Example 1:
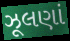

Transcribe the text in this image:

ઝૂલણાં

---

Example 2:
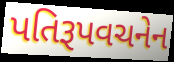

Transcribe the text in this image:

પતિરૂપવચનેન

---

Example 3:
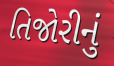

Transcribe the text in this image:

તિજોરીનું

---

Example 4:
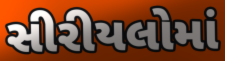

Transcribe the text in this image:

સીરીયલોમાં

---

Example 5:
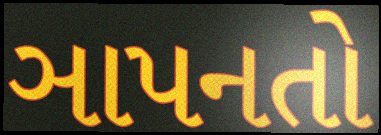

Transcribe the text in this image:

ઞાપનતો